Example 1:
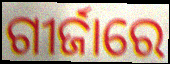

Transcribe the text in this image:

ଗୀର୍ଜାରେ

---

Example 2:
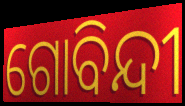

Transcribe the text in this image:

ଗୋବିନ୍ଦୀ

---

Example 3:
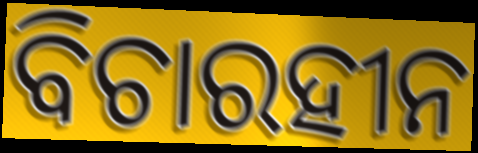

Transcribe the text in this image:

ବିଚାରହୀନ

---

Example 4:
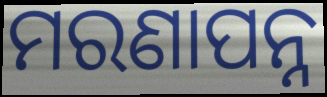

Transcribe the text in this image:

ମରଣାପନ୍ନ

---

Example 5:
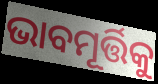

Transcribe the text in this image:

ଭାବମୂର୍ତ୍ତିକୁ